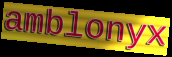
amblonyx